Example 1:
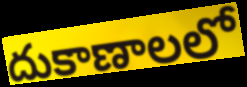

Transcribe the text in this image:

దుకాణాలలో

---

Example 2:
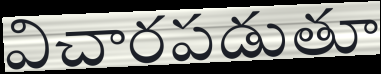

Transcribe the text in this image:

విచారపడుతూ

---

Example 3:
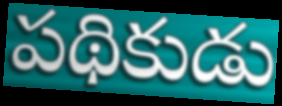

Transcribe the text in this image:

పథికుడు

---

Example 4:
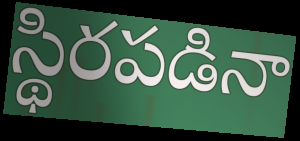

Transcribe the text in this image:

స్థిరపడినా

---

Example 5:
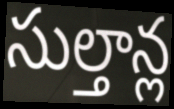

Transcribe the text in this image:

సుల్తాన్ల